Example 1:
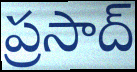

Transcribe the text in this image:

ప్రసాద్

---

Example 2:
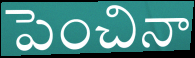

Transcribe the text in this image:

పెంచినా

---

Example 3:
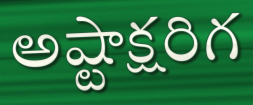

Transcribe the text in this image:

అష్టాక్షరిగ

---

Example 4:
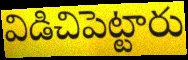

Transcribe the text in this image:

విడిచిపెట్టారు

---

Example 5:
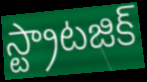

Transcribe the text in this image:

స్ట్రాటజిక్